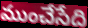
ముంచేసేది